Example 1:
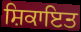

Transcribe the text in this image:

ਸ਼ਿਕਾਇਤ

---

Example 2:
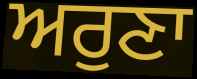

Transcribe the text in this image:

ਅਰੁਣਾ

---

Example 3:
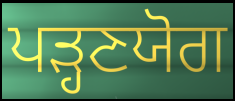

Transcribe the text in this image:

ਪੜ੍ਹਣਯੋਗ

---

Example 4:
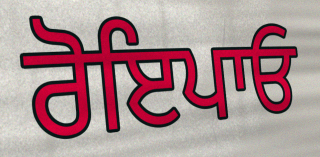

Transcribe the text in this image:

ਰੋਇਪਾਓ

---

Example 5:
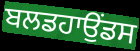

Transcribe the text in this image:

ਬਲਡਹਾਉਂਡਸ